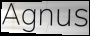
Agnus